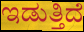
ಇಡುತ್ತಿದೆ